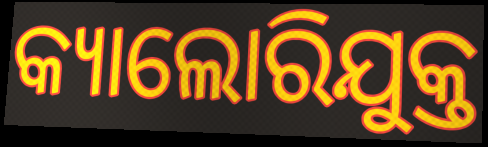
କ୍ୟାଲୋରିଯୁକ୍ତ